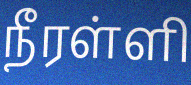
நீரள்ளி